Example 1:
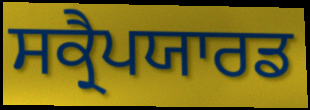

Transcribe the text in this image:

ਸਕ੍ਰੈਪਯਾਰਡ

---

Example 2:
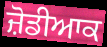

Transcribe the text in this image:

ਜ਼ੋਡੀਆਕ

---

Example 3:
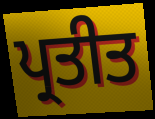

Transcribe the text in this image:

ਪ੍ਰਤੀਤ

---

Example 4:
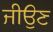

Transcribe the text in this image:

ਜੀਉਣ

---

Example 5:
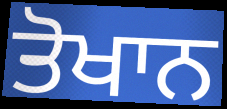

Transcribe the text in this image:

ਤੋਖਾਨ